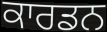
ਕਾਰਡਨ